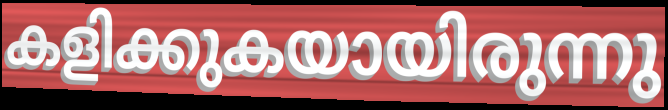
കളിക്കുകയായിരുന്നു